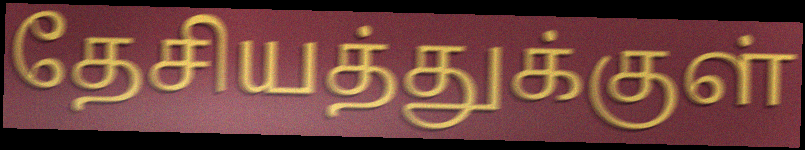
தேசியத்துக்குள்